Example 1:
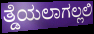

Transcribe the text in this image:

ತ್ಡೆಯಲಾಗಲ್ಲಲಿ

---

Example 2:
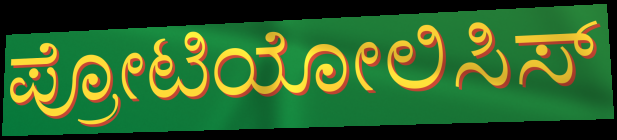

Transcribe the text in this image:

ಪ್ರೋಟಿಯೋಲಿಸಿಸ್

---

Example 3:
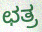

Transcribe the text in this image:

ಛತ್ರ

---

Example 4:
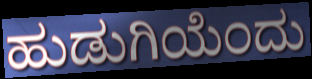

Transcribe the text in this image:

ಹುಡುಗಿಯೆಂದು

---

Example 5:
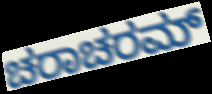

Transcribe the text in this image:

ಚರಾಚರಮ್